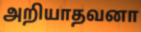
அறியாதவனா